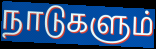
நாடுகளும்